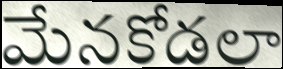
మేనకోడలా